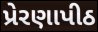
પ્રેરણાપીઠ